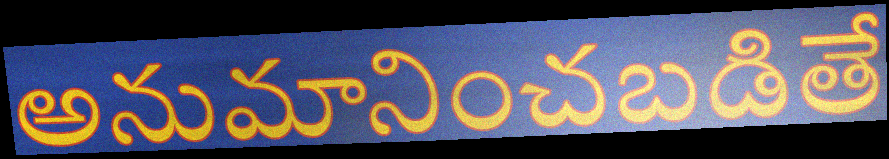
అనుమానించబడితే